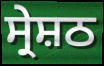
ਸ੍ਰੇਸ਼ਠ